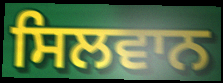
ਸਿਲਵਾਨ